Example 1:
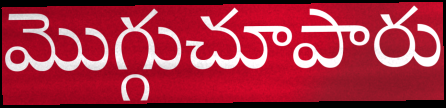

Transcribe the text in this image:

మొగ్గుచూపారు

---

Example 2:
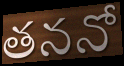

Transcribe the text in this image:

తననో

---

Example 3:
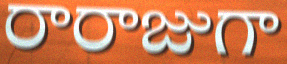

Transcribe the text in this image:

రారాజుగా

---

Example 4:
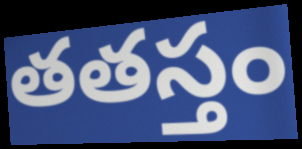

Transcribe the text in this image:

తతస్తం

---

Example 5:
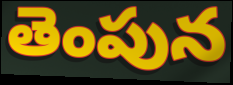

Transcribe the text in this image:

తెంపున